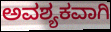
ಅವಶ್ಯಕವಾಗಿ